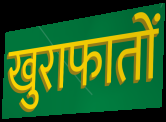
खुराफातों